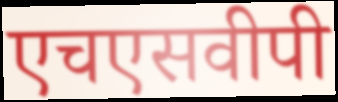
एचएसवीपी